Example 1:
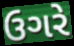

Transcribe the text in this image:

ઉગરે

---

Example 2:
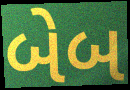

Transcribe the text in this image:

બેબ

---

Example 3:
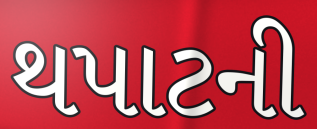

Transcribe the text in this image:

થપાટની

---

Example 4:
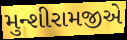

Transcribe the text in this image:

મુન્શીરામજીએ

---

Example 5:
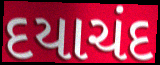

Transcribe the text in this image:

દયાચંદ